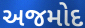
અજમોદ